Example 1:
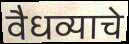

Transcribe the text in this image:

वैधव्याचे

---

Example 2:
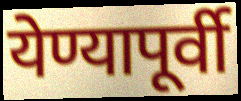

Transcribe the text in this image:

येण्यापूर्वी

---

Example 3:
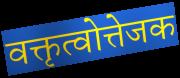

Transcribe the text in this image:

वक्तृत्वोत्तेजक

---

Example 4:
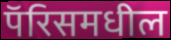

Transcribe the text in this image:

पॅरिसमधील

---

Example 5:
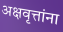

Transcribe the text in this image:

अक्षवृत्तांना